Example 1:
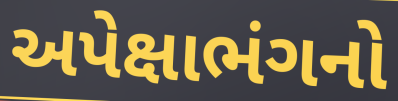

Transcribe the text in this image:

અપેક્ષાભંગનો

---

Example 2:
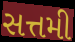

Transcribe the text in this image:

સત્તમી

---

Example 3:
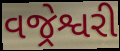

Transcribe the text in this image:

વજ્રેશ્વરી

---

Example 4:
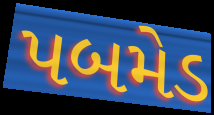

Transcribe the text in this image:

પબમેડ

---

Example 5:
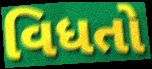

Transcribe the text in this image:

વિધતો